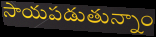
సాయపడుతున్నాం